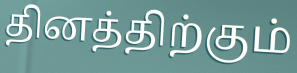
தினத்திற்கும்